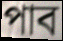
পাব